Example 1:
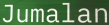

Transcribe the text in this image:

Jumalan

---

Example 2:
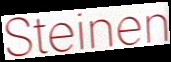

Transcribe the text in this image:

Steinen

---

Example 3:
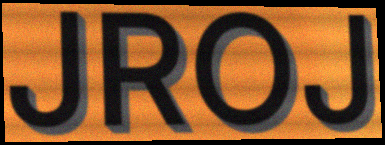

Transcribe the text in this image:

JROJ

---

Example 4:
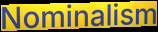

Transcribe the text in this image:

Nominalism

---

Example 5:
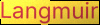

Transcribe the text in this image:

Langmuir